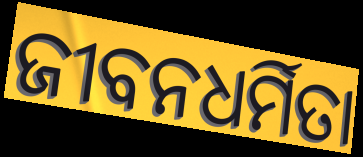
ଜୀବନଧର୍ମିତା